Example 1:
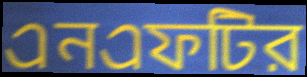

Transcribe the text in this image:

এনএফটির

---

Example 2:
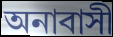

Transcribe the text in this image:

অনাবাসী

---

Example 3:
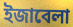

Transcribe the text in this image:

ইজাবেলা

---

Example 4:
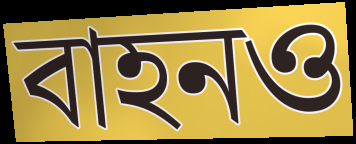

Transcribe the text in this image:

বাহনও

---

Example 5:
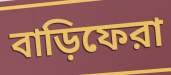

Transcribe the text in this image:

বাড়িফেরা